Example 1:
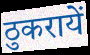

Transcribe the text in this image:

ठुकरायें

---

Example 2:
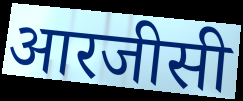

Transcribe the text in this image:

आरजीसी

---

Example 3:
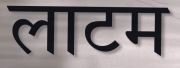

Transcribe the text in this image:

लाटम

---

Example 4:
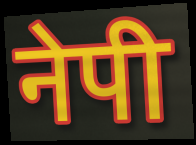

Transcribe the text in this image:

नेपी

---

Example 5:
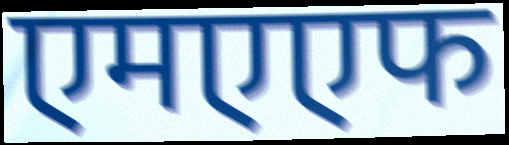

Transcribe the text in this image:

एमएएफ